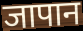
जापान